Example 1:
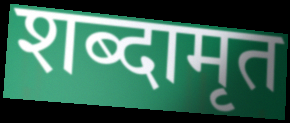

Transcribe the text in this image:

शब्दामृत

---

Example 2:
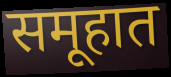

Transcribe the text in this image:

समूहात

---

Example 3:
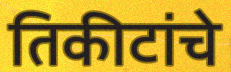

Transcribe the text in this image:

तिकीटांचे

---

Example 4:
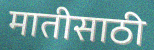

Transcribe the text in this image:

मातीसाठी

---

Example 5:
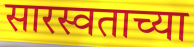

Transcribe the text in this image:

सारस्वताच्या